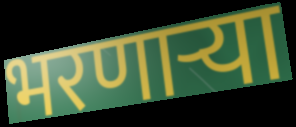
भरणाऱ्या